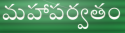
మహాపర్వతం